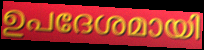
ഉപദേശമായി